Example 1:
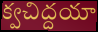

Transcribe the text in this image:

క్వచిద్దయా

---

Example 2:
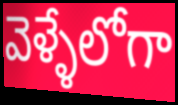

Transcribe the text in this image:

వెళ్ళేలోగా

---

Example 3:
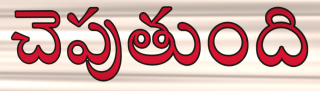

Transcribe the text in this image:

చెపుతుంది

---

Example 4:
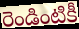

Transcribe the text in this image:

రెండింటికీ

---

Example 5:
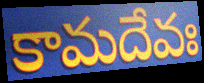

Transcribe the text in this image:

కామదేవః